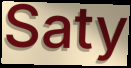
Saty